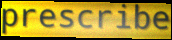
prescribe